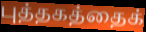
புத்தகத்தைக்